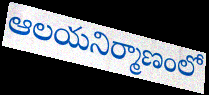
ఆలయనిర్మాణంలో